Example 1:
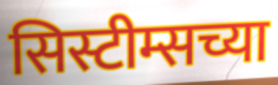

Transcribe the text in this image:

सिस्टीम्सच्या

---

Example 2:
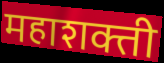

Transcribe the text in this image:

महाशक्ती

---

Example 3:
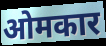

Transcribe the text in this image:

ओमकार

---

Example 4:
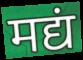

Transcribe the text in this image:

मद्यं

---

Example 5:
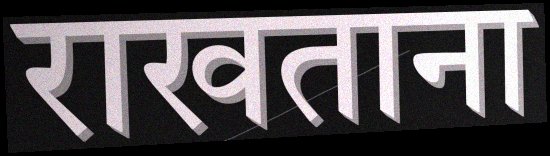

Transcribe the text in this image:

राखताना